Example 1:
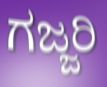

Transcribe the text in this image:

ಗಜ್ಜರಿ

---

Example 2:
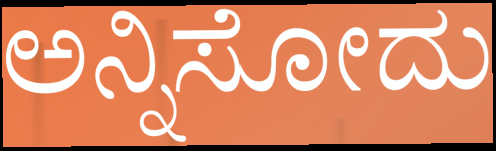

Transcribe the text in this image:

ಅನ್ನಿಸೋದು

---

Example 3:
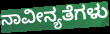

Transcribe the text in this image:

ನಾವೀನ್ಯತೆಗಳು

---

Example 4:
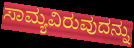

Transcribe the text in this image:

ಸಾಮ್ಯವಿರುವುದನ್ನು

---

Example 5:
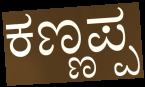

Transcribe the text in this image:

ಕಣ್ಣಪ್ಪ